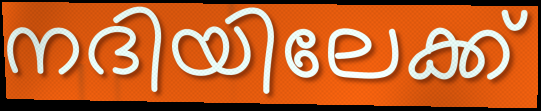
നദിയിലേക്ക്